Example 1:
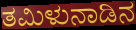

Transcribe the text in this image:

ತಮಿಳುನಾಡಿನ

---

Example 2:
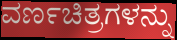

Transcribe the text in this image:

ವರ್ಣಚಿತ್ರಗಳನ್ನು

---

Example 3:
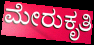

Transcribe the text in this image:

ಮೇರುಕೃತಿ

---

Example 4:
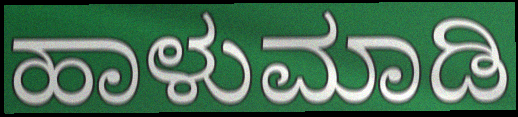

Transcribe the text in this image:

ಹಾಳುಮಾಡಿ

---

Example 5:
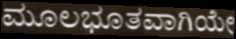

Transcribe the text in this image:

ಮೂಲಭೂತವಾಗಿಯೇ